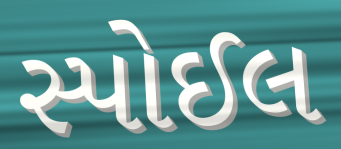
સ્પોઈલ